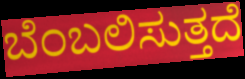
ಬೆಂಬಲಿಸುತ್ತದೆ